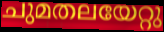
ചുമതലയേറ്റു